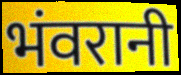
भंवरानी